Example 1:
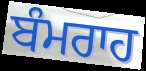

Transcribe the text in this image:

ਬੰਮਰਾਹ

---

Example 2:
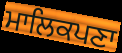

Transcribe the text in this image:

ਮਾਲਿਕਪਣਾ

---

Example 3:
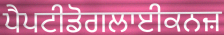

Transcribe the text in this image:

ਪੈਪਟੀਡੋਗਲਾਈਕਨਜ਼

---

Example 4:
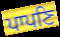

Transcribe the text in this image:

ਪਾਪਣਿ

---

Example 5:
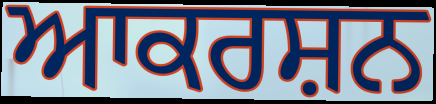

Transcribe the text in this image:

ਆਕਰਸ਼ਨ